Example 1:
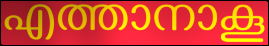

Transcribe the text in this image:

എത്താനാകൂ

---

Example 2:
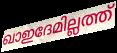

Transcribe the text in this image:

ഖാഇദേമില്ലത്ത്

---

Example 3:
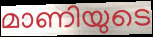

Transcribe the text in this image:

മാണിയുടെ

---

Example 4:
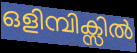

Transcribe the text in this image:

ഒളിമ്പിക്സിൽ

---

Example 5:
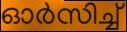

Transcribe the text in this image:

ഓർസിച്ച്